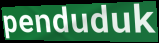
penduduk